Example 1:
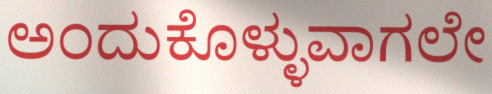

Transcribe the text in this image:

ಅಂದುಕೊಳ್ಳುವಾಗಲೇ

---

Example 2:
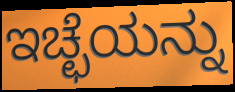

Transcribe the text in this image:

ಇಚ್ಛೆಯನ್ನು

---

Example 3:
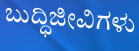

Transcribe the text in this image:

ಬುದ್ಧಿಜೀವಿಗಳು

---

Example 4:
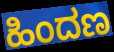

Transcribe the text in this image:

ಹಿಂದಣ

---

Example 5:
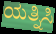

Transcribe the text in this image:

ಯತ್ನಿಸಿ